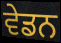
ਵੇਡਨ